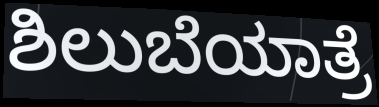
ಶಿಲುಬೆಯಾತ್ರೆ